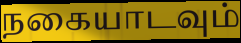
நகையாடவும்